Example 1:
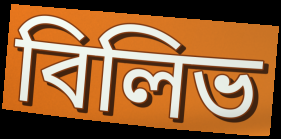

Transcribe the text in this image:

বিলিভ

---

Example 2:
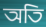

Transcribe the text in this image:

অতি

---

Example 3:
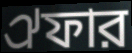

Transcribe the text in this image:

ঐফার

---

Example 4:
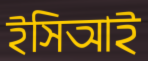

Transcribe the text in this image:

ইসিআই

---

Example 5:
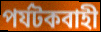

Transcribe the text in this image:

পর্যটকবাহী